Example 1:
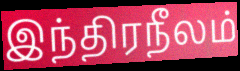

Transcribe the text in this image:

இந்திரநீலம்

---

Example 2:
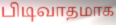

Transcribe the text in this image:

பிடிவாதமாக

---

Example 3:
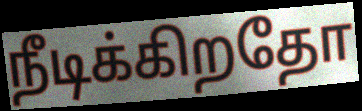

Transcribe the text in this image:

நீடிக்கிறதோ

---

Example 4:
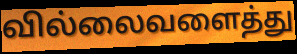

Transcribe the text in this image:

வில்லைவளைத்து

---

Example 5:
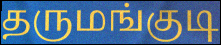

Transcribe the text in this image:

தருமங்குடி